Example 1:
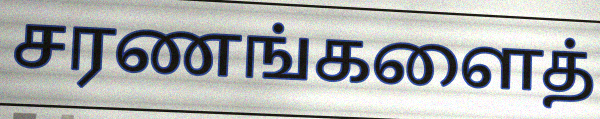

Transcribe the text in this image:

சரணங்களைத்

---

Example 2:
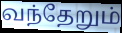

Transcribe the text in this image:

வந்தேறும்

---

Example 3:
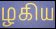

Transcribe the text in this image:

ழகிய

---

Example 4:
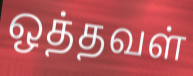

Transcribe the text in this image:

ஒத்தவள்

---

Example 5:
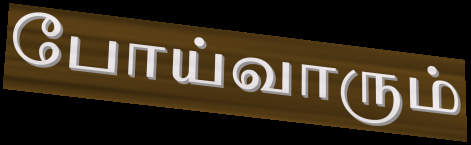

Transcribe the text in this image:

போய்வாரும்